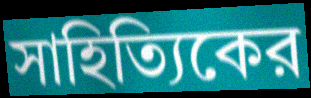
সাহিত্যিকের